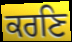
ਕਰਣਿ